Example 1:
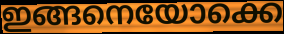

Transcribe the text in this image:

ഇങ്ങനെയോക്കെ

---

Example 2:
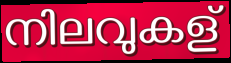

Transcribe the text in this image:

നിലവുകള്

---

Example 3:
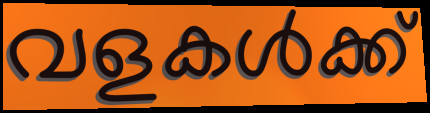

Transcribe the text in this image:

വളകൾക്ക്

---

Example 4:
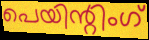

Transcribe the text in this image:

പെയിന്റിംഗ്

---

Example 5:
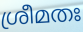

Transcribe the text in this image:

ശ്രീമതഃ